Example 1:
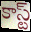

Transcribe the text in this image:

కాస్ట్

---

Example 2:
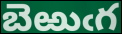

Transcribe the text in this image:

బెఱుఁగ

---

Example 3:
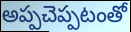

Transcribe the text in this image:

అప్పచెప్పటంతో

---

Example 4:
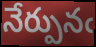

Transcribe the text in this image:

నేర్పునఁ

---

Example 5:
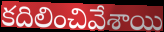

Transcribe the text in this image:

కదిలించివేశాయి